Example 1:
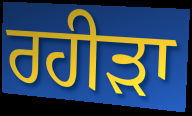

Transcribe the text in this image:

ਰਹੀੜਾ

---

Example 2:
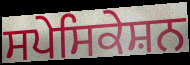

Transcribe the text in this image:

ਸਪੇਸਿਕੇਸ਼ਨ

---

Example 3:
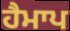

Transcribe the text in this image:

ਹੈਮਾਪ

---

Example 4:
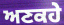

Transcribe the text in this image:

ਅਣਕਹੇ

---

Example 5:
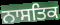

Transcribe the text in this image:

ਨਾਸਤਿਕ